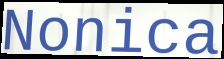
Nonica